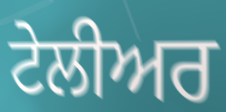
ਟੇਲੀਅਰ